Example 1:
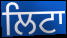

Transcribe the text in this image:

ਲਿਟਾ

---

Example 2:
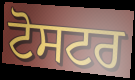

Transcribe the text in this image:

ਟੋਸਟਰ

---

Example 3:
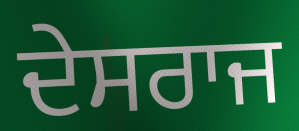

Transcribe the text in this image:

ਦੇਸਰਾਜ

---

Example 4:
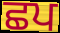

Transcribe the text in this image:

ਛਪ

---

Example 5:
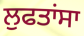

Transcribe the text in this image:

ਲੁਫਤਾਂਸਾ